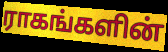
ராகங்களின்